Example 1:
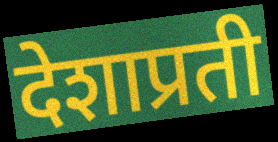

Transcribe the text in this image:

देशाप्रती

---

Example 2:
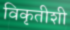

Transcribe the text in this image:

विकृतीशी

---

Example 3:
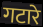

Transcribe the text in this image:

गटारे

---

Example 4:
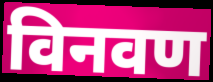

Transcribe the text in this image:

विनवण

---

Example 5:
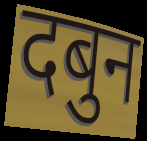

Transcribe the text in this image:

दबुन